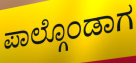
ಪಾಲ್ಗೊಂಡಾಗ